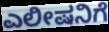
ಎಲೀಷನಿಗೆ